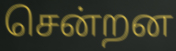
சென்றன